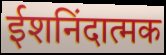
ईशनिंदात्मक